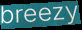
breezy